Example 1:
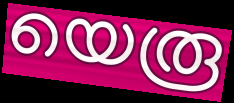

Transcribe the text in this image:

യെരൂ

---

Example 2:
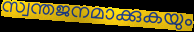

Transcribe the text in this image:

സ്വന്തജനമാക്കുകയും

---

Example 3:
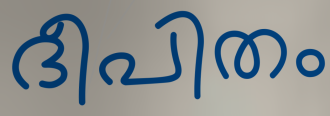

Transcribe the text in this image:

ദീപിതം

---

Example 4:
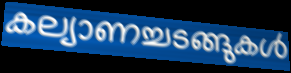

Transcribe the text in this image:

കല്യാണച്ചടങ്ങുകൾ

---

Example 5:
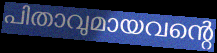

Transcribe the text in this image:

പിതാവുമായവന്റെ